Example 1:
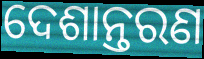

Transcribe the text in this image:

ଦେଶାନ୍ତରଣ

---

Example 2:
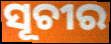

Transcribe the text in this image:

ସୂଚୀର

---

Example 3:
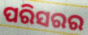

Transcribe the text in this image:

ପରିସରର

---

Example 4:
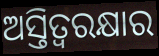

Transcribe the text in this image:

ଅସ୍ତିତ୍ୱରକ୍ଷାର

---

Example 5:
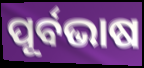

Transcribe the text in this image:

ପୂର୍ବଭାଷ